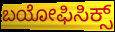
ಬಯೋಫಿಸಿಕ್ಸ್